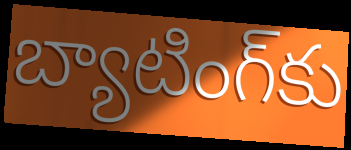
బ్యాటింగ్‌కు